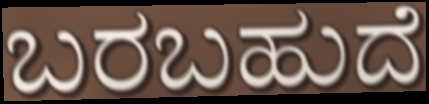
ಬರಬಹುದೆ